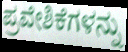
ಪ್ರವೇಶಿಕೆಗಳನ್ನು